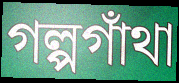
গল্পগাঁথা